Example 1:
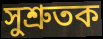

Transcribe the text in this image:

সুশ্ৰুতক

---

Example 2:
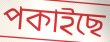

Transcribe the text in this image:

পকাইছে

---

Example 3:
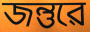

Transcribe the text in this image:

জন্তুৱে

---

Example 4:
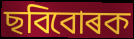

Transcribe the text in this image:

ছবিবোৰক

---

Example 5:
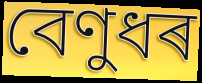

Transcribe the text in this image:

বেণুধৰ